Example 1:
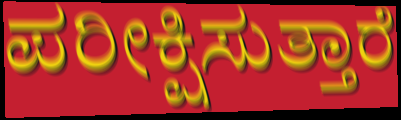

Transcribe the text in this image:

ಪರೀಕ್ಷಿಸುತ್ತಾರೆ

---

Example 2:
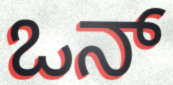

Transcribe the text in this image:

ಒನ್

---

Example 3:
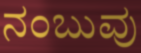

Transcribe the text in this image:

ನಂಬುವು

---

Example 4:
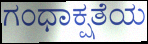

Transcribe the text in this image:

ಗಂಧಾಕ್ಷತೆಯ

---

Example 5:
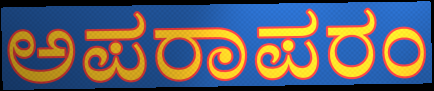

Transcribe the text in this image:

ಅಪರಾಪರಂ